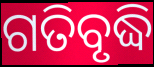
ଗତିବୃଦ୍ଧି